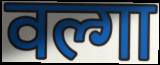
वल्गा